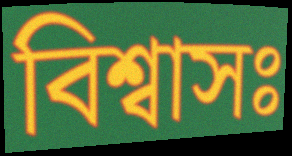
বিশ্বাসঃ